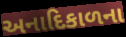
અનાદિકાળના